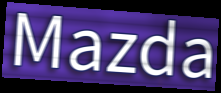
Mazda